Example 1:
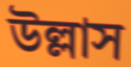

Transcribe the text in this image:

উল্লাস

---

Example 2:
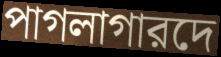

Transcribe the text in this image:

পাগলাগারদে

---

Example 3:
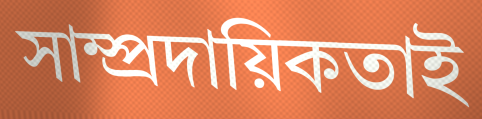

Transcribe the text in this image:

সাম্প্রদায়িকতাই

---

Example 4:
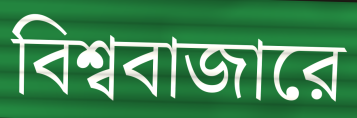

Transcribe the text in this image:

বিশ্ববাজারে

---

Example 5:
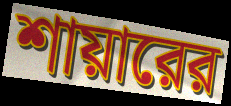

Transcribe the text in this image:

শায়ারের